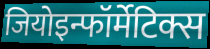
जियोइन्फॉर्मेटिक्स